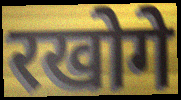
रखोगे